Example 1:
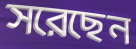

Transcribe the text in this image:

সরেছেন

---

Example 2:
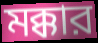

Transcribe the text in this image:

মক্কার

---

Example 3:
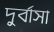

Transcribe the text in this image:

দুর্বাসা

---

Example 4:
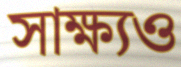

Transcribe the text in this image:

সাক্ষ্যও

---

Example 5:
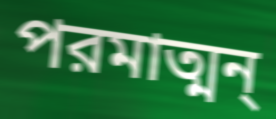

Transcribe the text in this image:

পরমাত্মন্